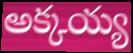
అక్కయ్య